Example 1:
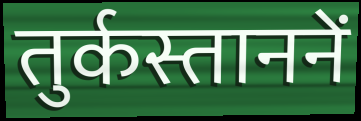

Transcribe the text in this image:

तुर्कस्ताननें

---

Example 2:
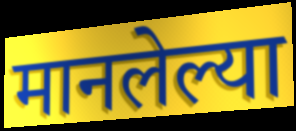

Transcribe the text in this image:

मानलेल्या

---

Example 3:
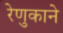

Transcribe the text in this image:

रेणुकाने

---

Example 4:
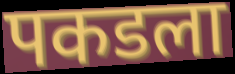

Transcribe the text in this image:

पकडला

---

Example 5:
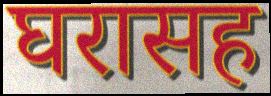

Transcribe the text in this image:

घरासह